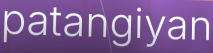
patangiyan